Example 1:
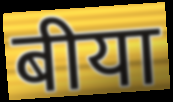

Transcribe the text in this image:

बीया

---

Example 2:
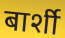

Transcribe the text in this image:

बार्शी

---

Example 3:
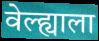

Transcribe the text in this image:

वेल्ह्याला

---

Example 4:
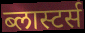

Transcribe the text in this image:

ब्लास्टर्स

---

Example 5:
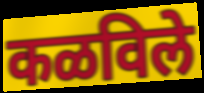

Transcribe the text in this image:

कळविले